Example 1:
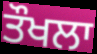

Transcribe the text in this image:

ਤੌਖਲਾ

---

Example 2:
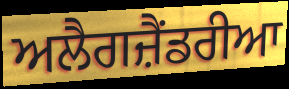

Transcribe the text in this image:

ਅਲੈਗਜ਼ੈਂਡਰੀਆ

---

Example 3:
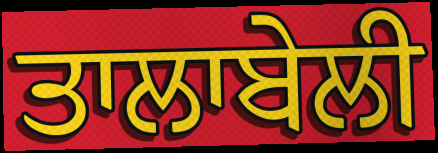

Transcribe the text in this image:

ਤਾਲਾਬੇਲੀ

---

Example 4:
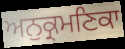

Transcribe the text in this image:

ਅਨੁਕ੍ਰਮਣਿਕਾ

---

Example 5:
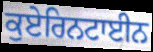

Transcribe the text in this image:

ਕੁਏਰਿਨਟਾਈਨ